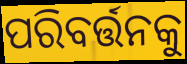
ପରିବର୍ତ୍ତନକୁ